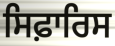
ਸਿਫ਼ਾਰਿਸ